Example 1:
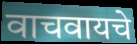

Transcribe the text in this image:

वाचवायचे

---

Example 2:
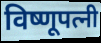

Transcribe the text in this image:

विष्णूपत्नी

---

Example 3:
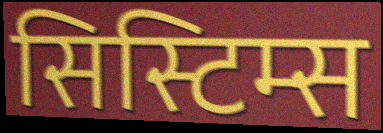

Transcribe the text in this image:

सिस्टिम्स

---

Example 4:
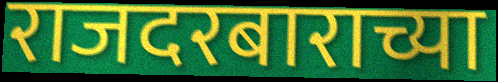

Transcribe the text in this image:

राजदरबाराच्या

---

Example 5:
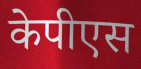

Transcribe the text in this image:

केपीएस